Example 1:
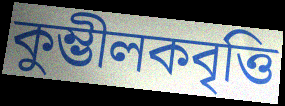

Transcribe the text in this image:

কুম্ভীলকবৃত্তি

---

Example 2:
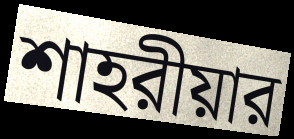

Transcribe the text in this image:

শাহরীয়ার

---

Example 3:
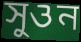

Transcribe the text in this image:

সুওন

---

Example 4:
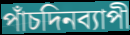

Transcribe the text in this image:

পাঁচদিনব্যাপী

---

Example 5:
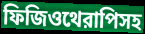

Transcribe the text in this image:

ফিজিওথেরাপিসহ